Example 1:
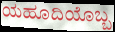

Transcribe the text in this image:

ಯಹೂದಿಯೊಬ್ಬ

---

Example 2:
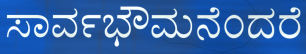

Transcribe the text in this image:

ಸಾರ್ವಭೌಮನೆಂದರೆ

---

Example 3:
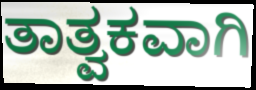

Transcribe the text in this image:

ತಾತ್ವಕವಾಗಿ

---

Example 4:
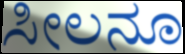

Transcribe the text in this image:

ಸೀಲನೂ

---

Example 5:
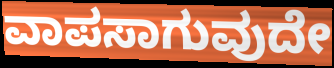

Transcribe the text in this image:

ವಾಪಸಾಗುವುದೇ